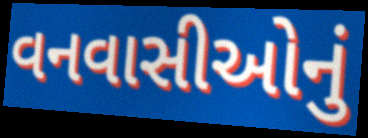
વનવાસીઓનું